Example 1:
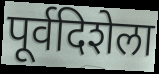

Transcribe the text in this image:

पूर्वदिशेला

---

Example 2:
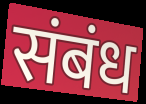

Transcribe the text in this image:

संबंध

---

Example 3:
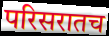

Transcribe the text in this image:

परिसरातच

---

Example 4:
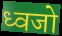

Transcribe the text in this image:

ध्वजो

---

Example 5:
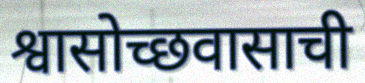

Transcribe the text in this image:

श्वासोच्छवासाची